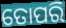
ତୋପରି